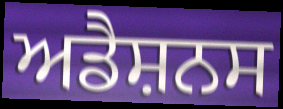
ਅਡੈਸ਼ਨਸ